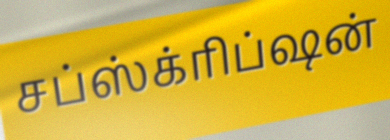
சப்ஸ்க்ரிப்ஷன்